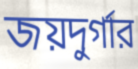
জয়দুর্গার